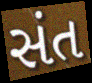
સંત